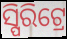
ସ୍ପିରିଟ୍ରେ